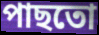
পাছতো